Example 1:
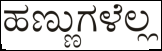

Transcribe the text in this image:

ಹಣ್ಣುಗಳೆಲ್ಲ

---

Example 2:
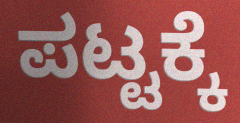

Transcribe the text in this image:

ಪಟ್ಟಕ್ಕೆ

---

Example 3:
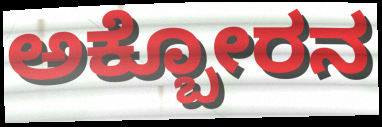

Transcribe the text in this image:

ಅಕ್ಬೋರನ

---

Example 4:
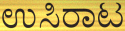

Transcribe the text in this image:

ಉಸಿರಾಟ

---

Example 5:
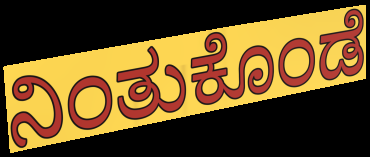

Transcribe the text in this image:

ನಿಂತುಕೊಂಡೆ